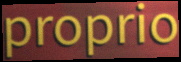
proprio